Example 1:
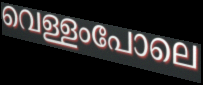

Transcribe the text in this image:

വെള്ളംപോലെ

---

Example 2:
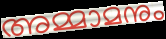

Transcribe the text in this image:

അമ്മാമനും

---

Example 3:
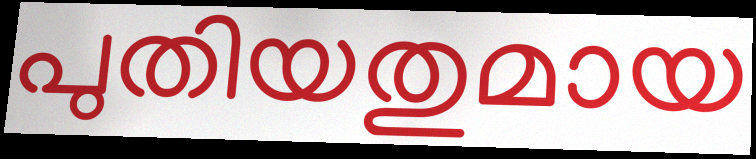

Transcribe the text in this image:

പുതിയതുമായ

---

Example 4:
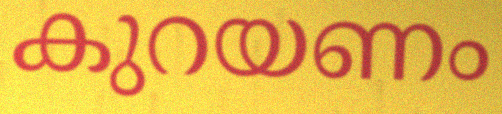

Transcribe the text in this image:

കുറയണം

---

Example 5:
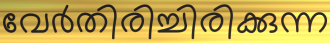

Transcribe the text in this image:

വേർതിരിച്ചിരിക്കുന്ന